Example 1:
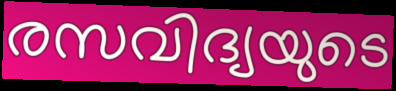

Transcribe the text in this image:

രസവിദ്യയുടെ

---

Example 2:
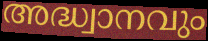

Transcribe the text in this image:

അദ്ധ്വാനവും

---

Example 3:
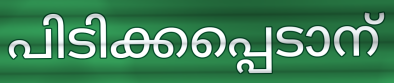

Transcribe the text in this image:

പിടിക്കപ്പെടാന്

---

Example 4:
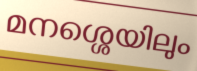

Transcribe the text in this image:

മനശ്ശെയിലും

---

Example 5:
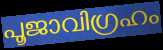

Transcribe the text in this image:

പൂജാവിഗ്രഹം